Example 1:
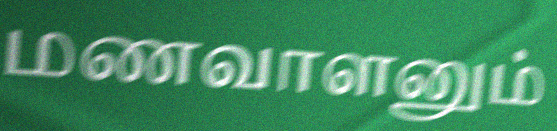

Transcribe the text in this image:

மணவாளனும்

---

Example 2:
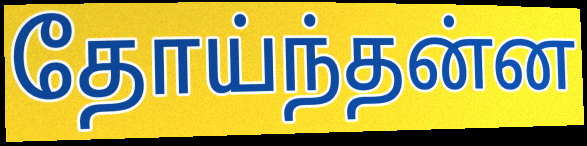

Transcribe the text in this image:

தோய்ந்தன்ன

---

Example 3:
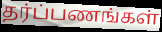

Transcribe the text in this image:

தர்ப்பணங்கள்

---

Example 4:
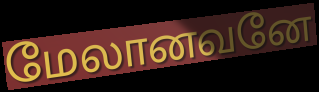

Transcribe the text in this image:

மேலானவனே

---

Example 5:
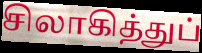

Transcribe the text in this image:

சிலாகித்துப்